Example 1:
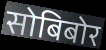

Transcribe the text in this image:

सोबिबोर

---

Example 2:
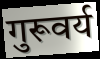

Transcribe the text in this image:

गुरूवर्य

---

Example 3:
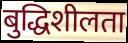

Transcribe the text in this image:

बुद्धिशीलता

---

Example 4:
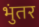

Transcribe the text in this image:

भुंतर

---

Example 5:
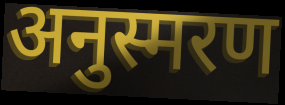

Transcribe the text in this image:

अनुस्मरण